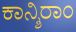
ಕಾನ್ಶಿರಾಂ